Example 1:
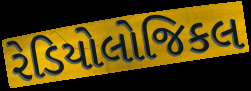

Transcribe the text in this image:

રેડિયોલોજિકલ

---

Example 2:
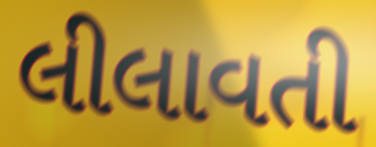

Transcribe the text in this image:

લીલાવતી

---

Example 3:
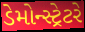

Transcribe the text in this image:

ડેમોન્સ્ટ્રેટરે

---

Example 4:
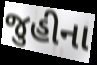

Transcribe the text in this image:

જુહીના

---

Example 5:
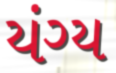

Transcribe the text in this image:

યંગ્ય